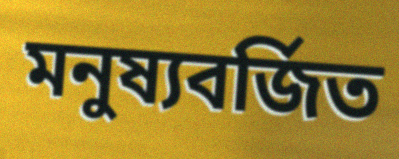
মনুষ্যবর্জিত